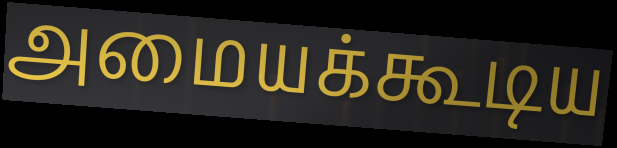
அமையக்கூடிய